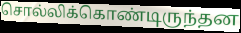
சொல்லிக்கொண்டிருந்தன